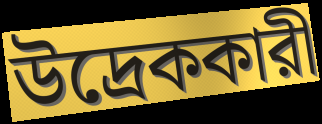
উদ্রেককারী